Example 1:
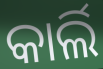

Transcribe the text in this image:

କାର୍ଲି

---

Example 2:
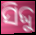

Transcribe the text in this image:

ସିଦ୍ଦୁ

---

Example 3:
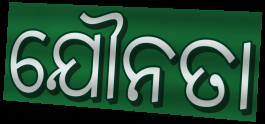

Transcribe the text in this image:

ଯୌନତା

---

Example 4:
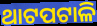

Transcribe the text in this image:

ଥାଟପଟାଳି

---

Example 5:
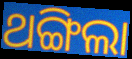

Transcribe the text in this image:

ଥଙ୍ଗିଲା